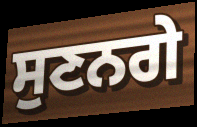
ਸੁਣਨਗੇ